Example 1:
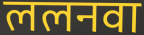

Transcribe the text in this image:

ललनवा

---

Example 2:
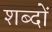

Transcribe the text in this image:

शब्दों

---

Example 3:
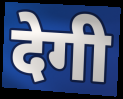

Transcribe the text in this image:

देगी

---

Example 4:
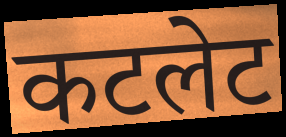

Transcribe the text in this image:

कटलेट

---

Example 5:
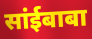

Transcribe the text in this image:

सांईबाबा